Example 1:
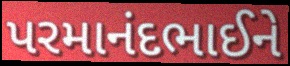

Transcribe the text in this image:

પરમાનંદભાઈને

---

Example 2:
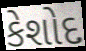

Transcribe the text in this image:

કેશોદ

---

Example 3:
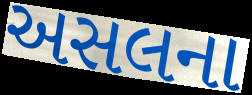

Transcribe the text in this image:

અસલના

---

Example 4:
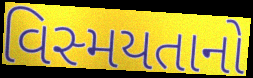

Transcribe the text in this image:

વિસ્મયતાનો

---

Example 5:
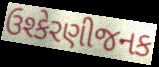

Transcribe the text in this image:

ઉશ્કેરણીજનક